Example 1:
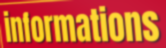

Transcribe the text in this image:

informations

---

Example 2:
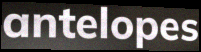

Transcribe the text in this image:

antelopes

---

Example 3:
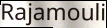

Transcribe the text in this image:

Rajamouli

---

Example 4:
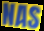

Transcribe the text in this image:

NAS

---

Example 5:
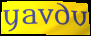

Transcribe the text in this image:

yavdu